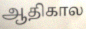
ஆதிகால